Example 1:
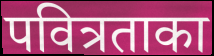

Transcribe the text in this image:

पवित्रताका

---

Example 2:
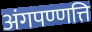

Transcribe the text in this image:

अंगपण्णत्ति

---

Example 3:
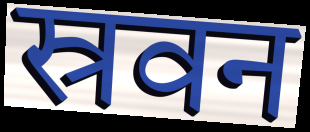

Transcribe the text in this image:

स्रवन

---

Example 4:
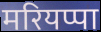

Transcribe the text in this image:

मरियप्पा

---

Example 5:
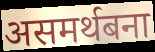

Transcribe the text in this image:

असमर्थबना